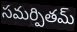
సమర్పితమ్